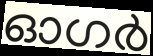
ഓഗർ